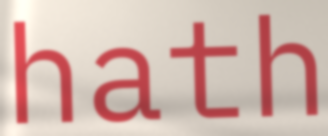
hath